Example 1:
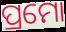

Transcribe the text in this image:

ପ୍ରମୋ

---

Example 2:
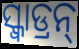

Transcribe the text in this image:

ସ୍କ୍ୱାଡ୍ରନ୍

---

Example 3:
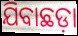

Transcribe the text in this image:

ଯିବାଛଡ଼ା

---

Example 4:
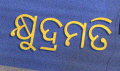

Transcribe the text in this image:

କ୍ଷୁଦ୍ରମତି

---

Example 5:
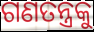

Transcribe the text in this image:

ଗଣତନ୍ତ୍ରକୁ